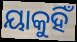
ୟାକୁହିଁ